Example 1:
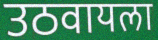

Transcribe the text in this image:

उठवायला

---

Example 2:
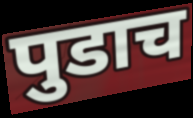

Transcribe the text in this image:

पुडाच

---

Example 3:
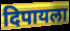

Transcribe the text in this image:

दिपायला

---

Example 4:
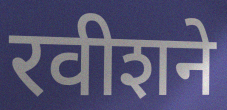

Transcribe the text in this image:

रवीशने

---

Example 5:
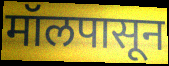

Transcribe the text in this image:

मॉलपासून